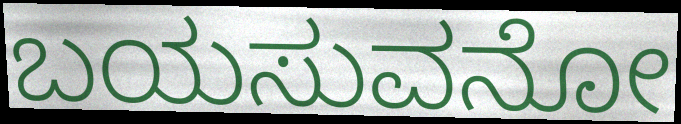
ಬಯಸುವನೋ